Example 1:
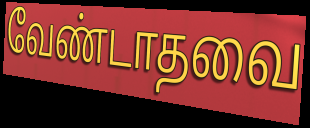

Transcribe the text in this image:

வேண்டாதவை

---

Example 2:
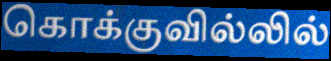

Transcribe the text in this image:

கொக்குவில்லில்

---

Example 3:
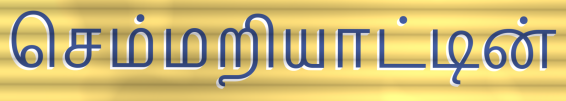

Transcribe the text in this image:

செம்மறியாட்டின்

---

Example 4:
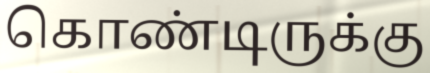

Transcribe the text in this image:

கொண்டிருக்கு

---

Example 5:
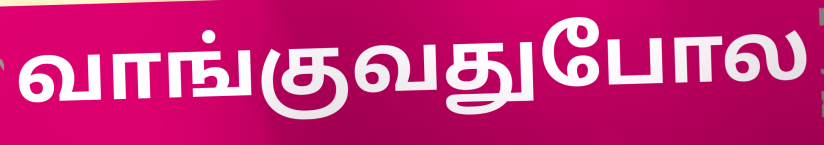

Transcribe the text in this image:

வாங்குவதுபோல